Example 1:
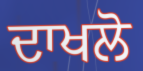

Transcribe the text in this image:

ਦਾਖਲੋ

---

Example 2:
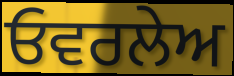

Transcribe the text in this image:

ਓਵਰਲੇਅ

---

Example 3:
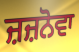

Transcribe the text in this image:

ਜ਼ਜ਼ਨੋਵਾ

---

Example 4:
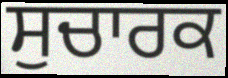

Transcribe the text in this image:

ਸੁਚਾਰਕ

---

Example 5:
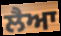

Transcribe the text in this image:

ਲੈਆ